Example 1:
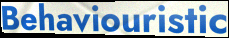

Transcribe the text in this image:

Behaviouristic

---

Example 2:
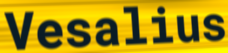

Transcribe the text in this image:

Vesalius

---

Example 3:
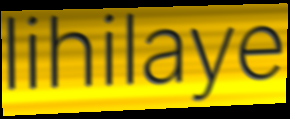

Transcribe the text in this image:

lihilaye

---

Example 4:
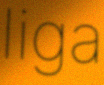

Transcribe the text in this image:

liga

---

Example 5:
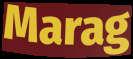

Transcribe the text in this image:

Marag